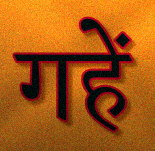
गहें